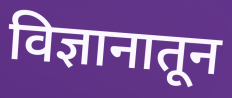
विज्ञानातून